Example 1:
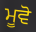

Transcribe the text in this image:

ਮੂਵੋ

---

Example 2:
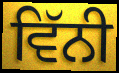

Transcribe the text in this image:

ਵਿੱਨੀ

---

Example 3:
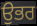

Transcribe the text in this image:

ਉਭਰ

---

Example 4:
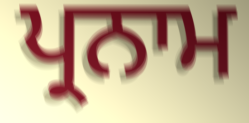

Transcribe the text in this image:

ਪ੍ਰਨਾਮ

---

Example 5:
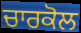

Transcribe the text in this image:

ਚਾਰਕੋਲ